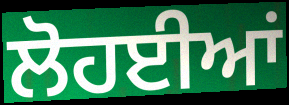
ਲੋਹਈਆਂ